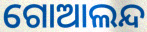
ଗୋଆଲନ୍ଦ